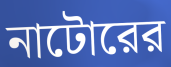
নাটোরের